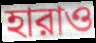
হারাও